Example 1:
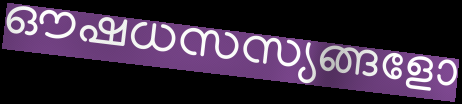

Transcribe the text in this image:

ഔഷധസസ്യങ്ങളോ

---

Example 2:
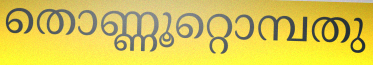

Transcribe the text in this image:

തൊണ്ണൂറ്റൊമ്പതു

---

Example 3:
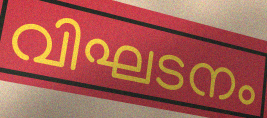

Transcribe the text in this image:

വിഘടനം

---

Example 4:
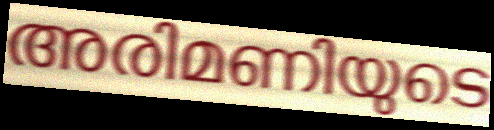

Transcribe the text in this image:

അരിമണിയുടെ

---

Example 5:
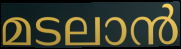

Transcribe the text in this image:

മടലാൻ